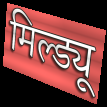
मिल्ड्यू